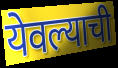
येवल्याची